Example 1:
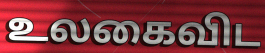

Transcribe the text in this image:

உலகைவிட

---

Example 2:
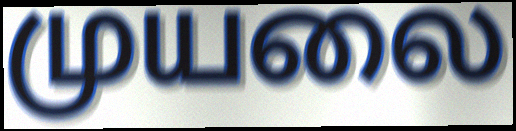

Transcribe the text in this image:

முயலை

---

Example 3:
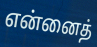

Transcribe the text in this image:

என்னைத்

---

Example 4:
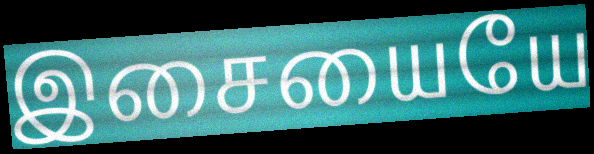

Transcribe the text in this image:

இசையையே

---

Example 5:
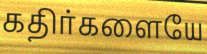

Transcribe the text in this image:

கதிர்களையே